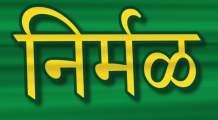
निर्मळ